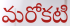
మరోకటి